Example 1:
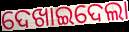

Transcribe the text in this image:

ଦେଖାଇଦେଲା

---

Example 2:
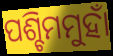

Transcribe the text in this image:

ପଶ୍ଚିମମୁହାଁ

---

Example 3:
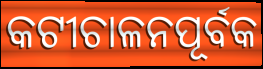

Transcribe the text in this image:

କଟୀଚାଳନପୂର୍ବକ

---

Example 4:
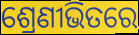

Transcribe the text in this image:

ଶ୍ରେଣୀଭିତରେ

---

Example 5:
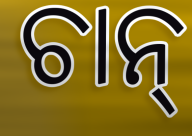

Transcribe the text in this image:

ଚାନ୍